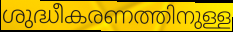
ശുദ്ധീകരണത്തിനുള്ള